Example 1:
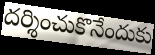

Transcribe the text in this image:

దర్శించుకొనేందుకు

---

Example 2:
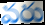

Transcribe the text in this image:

వరు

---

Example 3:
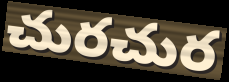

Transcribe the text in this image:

చురచుర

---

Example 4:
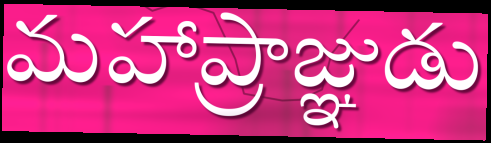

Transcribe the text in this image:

మహాప్రాజ్ఞుడు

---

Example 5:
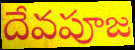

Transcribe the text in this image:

దేవపూజ